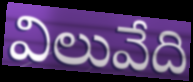
విలువేది